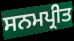
ਸਨਮਪ੍ਰੀਤ